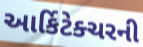
આર્કિટેક્ચરની